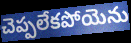
చెప్పలేకపోయెను